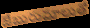
జేబురుమాలుతో